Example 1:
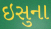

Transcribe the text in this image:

ઇસુના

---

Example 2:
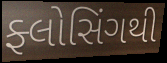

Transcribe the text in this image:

ફ્લોસિંગથી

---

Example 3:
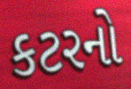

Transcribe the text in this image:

કટરનો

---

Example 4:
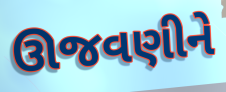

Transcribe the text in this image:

ઊજવણીને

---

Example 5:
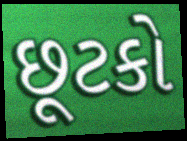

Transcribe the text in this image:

છૂટકો